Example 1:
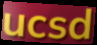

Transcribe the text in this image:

ucsd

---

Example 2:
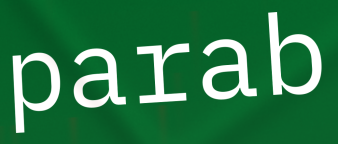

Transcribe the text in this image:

parab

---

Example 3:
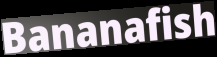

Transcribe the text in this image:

Bananafish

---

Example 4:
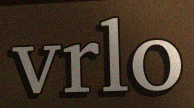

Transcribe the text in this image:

vrlo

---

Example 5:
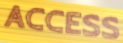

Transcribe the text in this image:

ACCESS